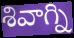
శివాగ్ని